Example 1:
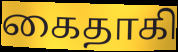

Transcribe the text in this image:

கைதாகி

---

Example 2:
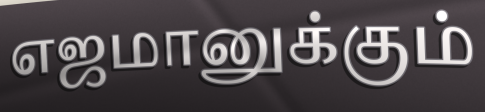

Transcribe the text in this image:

எஜமானுக்கும்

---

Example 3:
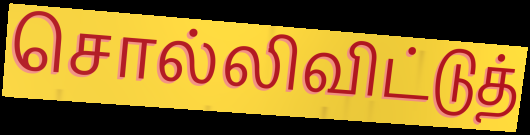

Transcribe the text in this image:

சொல்லிவிட்டுத்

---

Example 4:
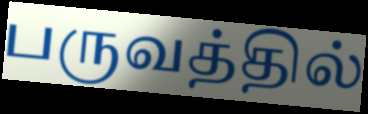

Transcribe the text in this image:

பருவத்தில்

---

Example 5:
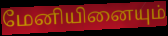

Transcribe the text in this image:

மேனியினையும்